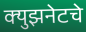
क्युझनेटचे